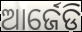
ଆର୍ଜେଡି